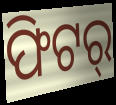
ଫିଟର୍